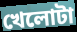
খেলোটা